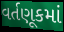
વર્તણૂકમાં